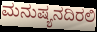
ಮನುಷ್ಯನದಿರಲಿ